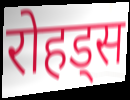
रोहड्स